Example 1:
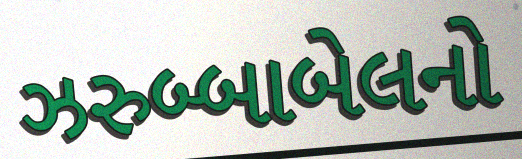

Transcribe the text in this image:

ઝરુબ્બાબેલનો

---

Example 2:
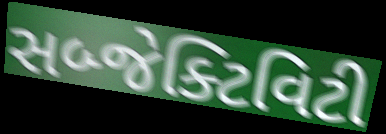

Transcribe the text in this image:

સબ્જેક્ટિવિટી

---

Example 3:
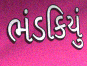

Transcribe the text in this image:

ભંડકિયું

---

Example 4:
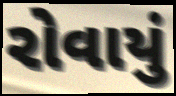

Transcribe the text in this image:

રોવાયું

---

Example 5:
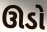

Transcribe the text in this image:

ઊડો